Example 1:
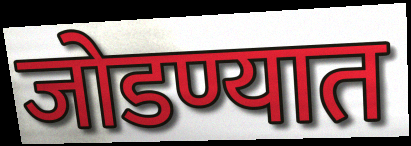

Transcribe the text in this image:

जोडण्यात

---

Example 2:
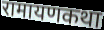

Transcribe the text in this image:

रामायणकथा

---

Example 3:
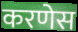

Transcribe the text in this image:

करणेस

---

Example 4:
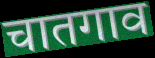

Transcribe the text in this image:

चातगाव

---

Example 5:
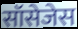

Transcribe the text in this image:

सॉसेजेस